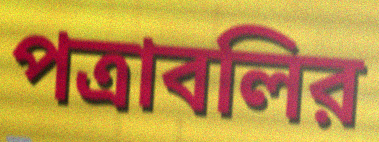
পত্রাবলির